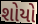
શોયો